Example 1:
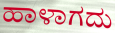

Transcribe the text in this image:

ಹಾಳಾಗದು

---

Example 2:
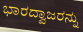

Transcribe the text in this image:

ಭಾರದ್ವಾಜರನ್ನು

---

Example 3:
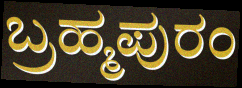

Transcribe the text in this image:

ಬ್ರಹ್ಮಪುರಂ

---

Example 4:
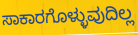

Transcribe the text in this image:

ಸಾಕಾರಗೊಳ್ಳುವುದಿಲ್ಲ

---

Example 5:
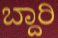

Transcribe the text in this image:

ಬ್ದಾರಿ